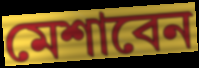
মেশাবেন